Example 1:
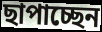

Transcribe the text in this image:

ছাপাচ্ছেন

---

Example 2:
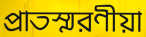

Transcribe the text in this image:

প্রাতস্মরণীয়া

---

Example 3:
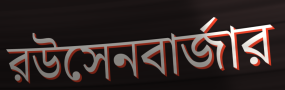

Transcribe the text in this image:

রউসেনবার্জার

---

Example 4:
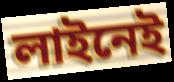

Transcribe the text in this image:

লাইনেই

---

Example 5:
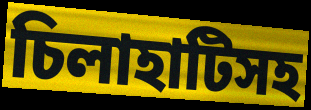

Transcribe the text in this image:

চিলাহাটিসহ